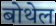
बोथेल